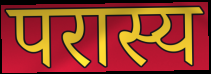
परास्य